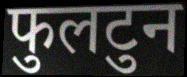
फुलटुन